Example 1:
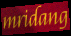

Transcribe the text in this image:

mridang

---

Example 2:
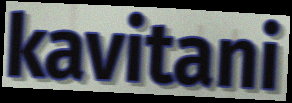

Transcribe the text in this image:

kavitani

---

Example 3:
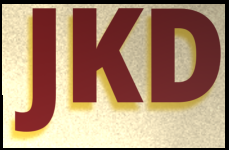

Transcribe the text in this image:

JKD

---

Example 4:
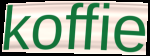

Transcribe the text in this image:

koffie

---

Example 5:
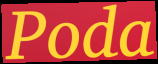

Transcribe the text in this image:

Poda